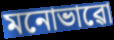
মনোভাৱো